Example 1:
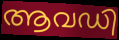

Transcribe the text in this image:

ആവഡി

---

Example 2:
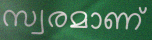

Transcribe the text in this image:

സ്വരമാണ്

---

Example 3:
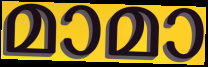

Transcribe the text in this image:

മാമാ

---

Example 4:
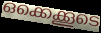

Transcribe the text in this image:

ഒക്കെക്കൂടെ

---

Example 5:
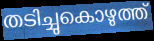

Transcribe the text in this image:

തടിച്ചുകൊഴുത്ത്